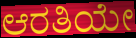
ಆರತಿಯೇ